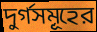
দুর্গসমূহের